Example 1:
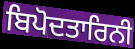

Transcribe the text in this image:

ਬਿਪੋਦਤਾਰਿਨੀ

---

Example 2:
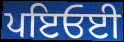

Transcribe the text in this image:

ਪਇਓਈ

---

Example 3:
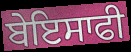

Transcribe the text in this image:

ਬੇਇਸਾਫੀ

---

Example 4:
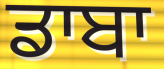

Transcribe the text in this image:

ਡਾਬਾ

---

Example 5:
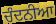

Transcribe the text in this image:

ਚੰਦਨੀਆ